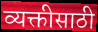
व्यक्तीसाठी